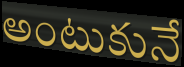
అంటుకునే